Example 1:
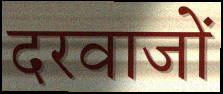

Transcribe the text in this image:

दरवाजों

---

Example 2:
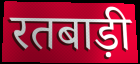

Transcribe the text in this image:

रतबाड़ी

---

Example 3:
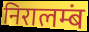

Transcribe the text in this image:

निरालम्बं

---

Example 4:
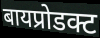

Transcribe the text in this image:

बायप्रोडक्ट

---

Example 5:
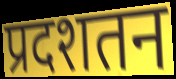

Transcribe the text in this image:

प्रदशतन